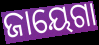
ଜାୟେଗା